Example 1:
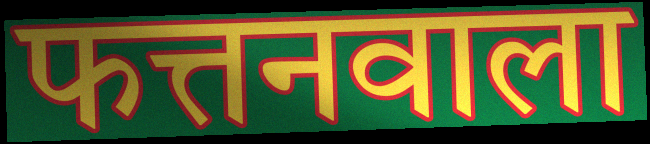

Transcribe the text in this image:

फत्तनवाला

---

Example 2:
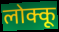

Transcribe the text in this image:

लोक्कू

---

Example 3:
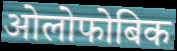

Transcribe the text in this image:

ओलोफोबिक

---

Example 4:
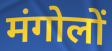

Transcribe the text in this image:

मंगोलों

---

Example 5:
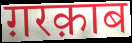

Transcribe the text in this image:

ग़रक़ाब